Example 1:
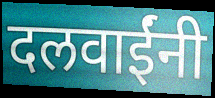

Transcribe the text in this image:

दलवाईंनी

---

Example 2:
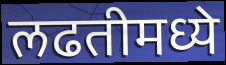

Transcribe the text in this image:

लढतीमध्ये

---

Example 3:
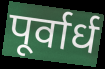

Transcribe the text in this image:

पूर्वार्ध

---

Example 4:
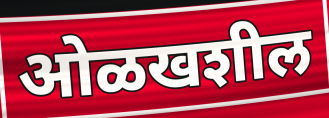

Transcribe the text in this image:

ओळखशील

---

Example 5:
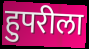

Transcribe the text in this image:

हुपरीला